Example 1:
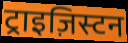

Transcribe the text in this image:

ट्राइज़िस्टन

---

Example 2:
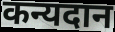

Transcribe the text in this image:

कन्यदान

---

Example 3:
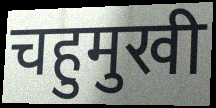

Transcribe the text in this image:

चहुमुखी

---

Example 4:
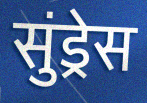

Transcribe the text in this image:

सुंड्रेस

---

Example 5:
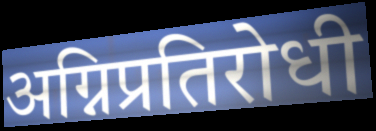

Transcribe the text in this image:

अग्निप्रतिरोधी